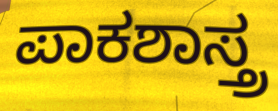
ಪಾಕಶಾಸ್ತ್ರ